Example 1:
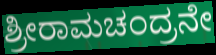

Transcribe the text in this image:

ಶ್ರೀರಾಮಚಂದ್ರನೇ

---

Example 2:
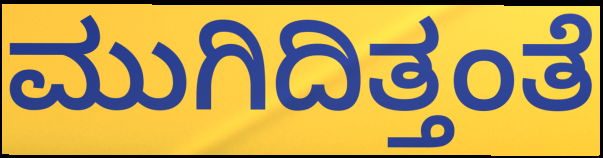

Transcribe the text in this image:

ಮುಗಿದಿತ್ತಂತೆ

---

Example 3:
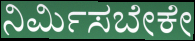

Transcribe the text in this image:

ನಿರ್ಮಿಸಬೇಕೇ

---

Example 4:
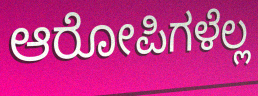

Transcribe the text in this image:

ಆರೋಪಿಗಳೆಲ್ಲ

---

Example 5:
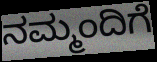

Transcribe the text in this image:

ನಮ್ಮಂದಿಗೆ